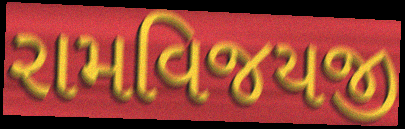
રામવિજયજી